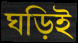
ঘড়িই